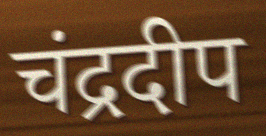
चंद्रदीप